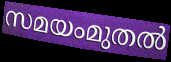
സമയംമുതൽ